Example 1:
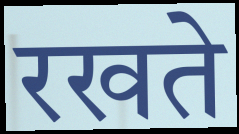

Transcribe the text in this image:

रखते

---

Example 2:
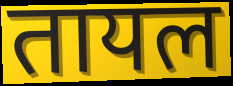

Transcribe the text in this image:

तायल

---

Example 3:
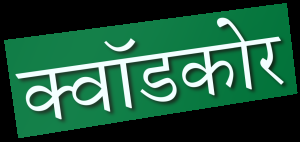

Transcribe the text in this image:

क्वॉडकोर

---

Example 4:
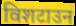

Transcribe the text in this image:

विशटाउन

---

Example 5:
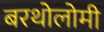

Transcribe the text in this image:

बरथोलोमी